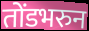
तोंडभरुन